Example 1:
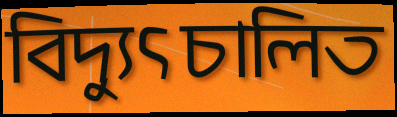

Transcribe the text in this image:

বিদ্যুৎচালিত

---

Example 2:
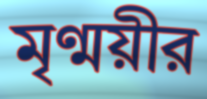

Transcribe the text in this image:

মৃণ্ময়ীর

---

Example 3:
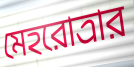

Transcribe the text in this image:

মেহরোত্রার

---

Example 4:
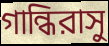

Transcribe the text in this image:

গান্ধিরাসু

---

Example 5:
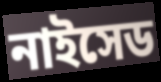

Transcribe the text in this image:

নাইসেড